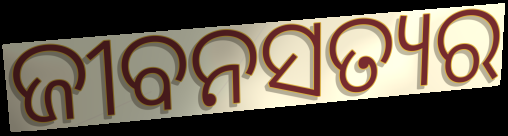
ଜୀବନସତ୍ୟର